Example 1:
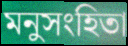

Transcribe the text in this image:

মনুসংহিতা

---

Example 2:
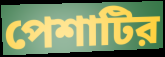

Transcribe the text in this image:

পেশাটির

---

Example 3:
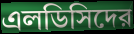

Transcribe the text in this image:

এলডিসিদের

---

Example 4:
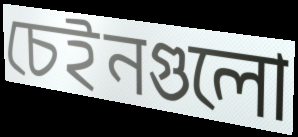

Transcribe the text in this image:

চেইনগুলো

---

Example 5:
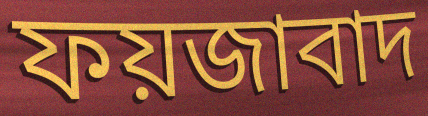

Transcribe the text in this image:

ফয়জাবাদ